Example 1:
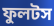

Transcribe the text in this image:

ফুলটস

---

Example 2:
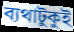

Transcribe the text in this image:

ব্যথাটুকুই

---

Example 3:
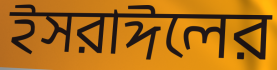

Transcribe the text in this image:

ইসরাঈলের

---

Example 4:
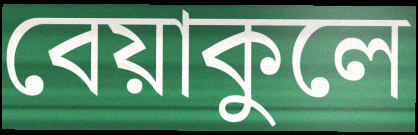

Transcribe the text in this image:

বেয়াকুলে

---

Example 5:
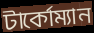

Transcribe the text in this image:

টার্কোম্যান